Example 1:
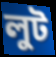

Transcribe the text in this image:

লুট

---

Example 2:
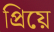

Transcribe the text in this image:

প্রিয়ে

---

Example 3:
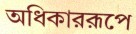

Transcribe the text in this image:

অধিকাররূপে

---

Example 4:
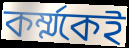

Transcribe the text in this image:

কর্ম্মকেই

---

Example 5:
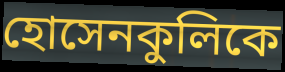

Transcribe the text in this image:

হোসেনকুলিকে